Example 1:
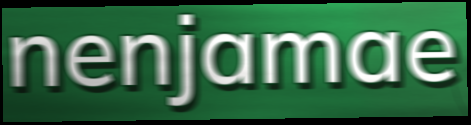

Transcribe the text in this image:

nenjamae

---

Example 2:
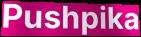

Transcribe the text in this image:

Pushpika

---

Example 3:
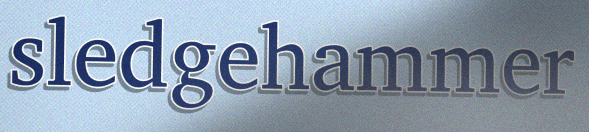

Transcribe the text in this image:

sledgehammer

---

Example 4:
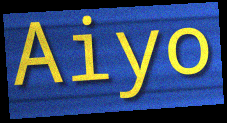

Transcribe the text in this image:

Aiyo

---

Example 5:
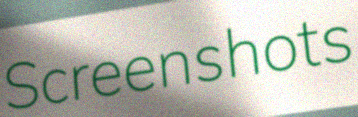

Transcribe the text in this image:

Screenshots